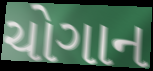
ચોગાન